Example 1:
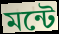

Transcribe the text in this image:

মন্টে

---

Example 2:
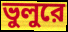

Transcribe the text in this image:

ভুলুরে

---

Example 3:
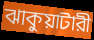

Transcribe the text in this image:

ঝাকুয়াটারী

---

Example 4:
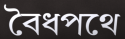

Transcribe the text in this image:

বৈধপথে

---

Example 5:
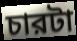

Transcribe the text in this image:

চারটা